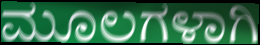
ಮೂಲಗಳಾಗಿ